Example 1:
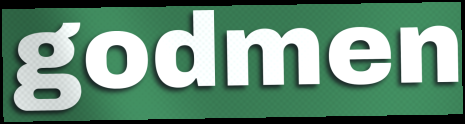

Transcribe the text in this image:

godmen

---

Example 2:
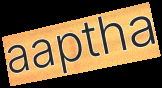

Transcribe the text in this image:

aaptha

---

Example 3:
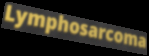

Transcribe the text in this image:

Lymphosarcoma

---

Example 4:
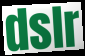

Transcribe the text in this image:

dslr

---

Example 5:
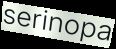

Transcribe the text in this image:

serinopa